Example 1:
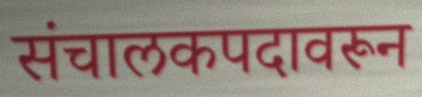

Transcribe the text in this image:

संचालकपदावरून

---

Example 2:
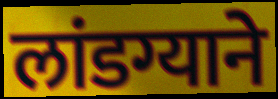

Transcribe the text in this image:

लांडग्याने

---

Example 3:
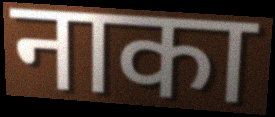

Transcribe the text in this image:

नाका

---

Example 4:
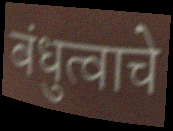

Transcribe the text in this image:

बंधुत्वाचे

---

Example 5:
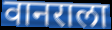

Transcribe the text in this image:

वानराला